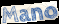
Mano